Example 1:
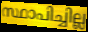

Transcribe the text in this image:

സ്ഥാപിച്ചില്ല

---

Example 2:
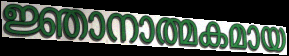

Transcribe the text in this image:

ജ്ഞാനാത്മകമായ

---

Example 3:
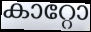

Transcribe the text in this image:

കാറ്റോ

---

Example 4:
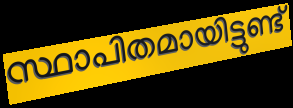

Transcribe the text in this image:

സ്ഥാപിതമായിട്ടുണ്ട്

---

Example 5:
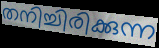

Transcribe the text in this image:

തനിച്ചിരിക്കുന്ന